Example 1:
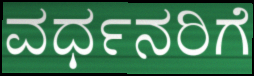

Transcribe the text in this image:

ವರ್ಧನರಿಗೆ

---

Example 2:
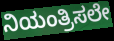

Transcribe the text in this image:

ನಿಯಂತ್ರಿಸಲೇ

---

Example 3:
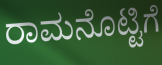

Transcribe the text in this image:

ರಾಮನೊಟ್ಟಿಗೆ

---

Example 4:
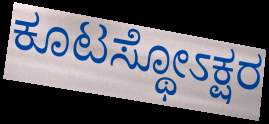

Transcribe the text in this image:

ಕೂಟಸ್ಥೋಽಕ್ಷರ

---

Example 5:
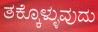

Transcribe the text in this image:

ತಕ್ಕೊಳ್ಳುವುದು